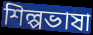
শিল্পভাষা